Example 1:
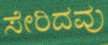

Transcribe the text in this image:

ಸೇರಿದವು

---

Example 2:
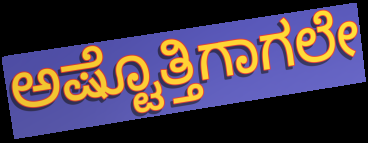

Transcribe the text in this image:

ಅಷ್ಟೊತ್ತಿಗಾಗಲೇ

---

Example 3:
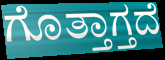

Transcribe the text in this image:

ಗೊತ್ತಾಗ್ತದೆ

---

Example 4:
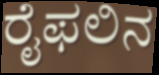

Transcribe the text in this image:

ರೈಫಲಿನ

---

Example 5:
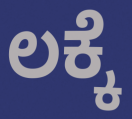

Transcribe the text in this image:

ಲಕ್ಕೆ